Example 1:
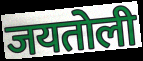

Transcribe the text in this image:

जयतोली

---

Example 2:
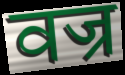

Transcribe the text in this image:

वज्र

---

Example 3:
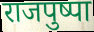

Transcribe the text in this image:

राजपुष्पा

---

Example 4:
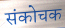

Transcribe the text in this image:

संकोचक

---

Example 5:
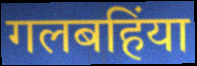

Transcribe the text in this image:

गलबहिंया